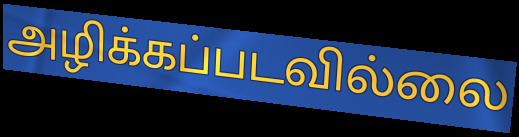
அழிக்கப்படவில்லை